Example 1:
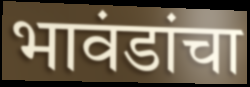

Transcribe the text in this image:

भावंडांचा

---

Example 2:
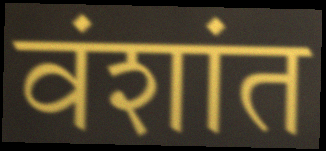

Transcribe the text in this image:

वंशांत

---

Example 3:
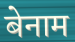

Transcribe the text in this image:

बेनाम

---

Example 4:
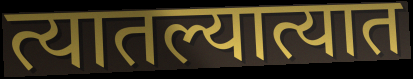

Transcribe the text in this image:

त्यातल्यात्यात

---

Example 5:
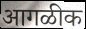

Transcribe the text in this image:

आगळीक